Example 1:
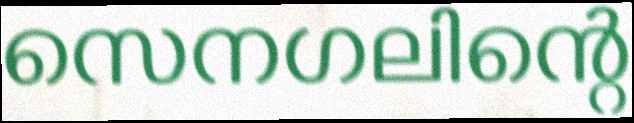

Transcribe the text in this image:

സെനഗലിന്റെ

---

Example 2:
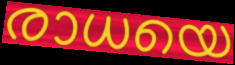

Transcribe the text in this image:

രാധയെ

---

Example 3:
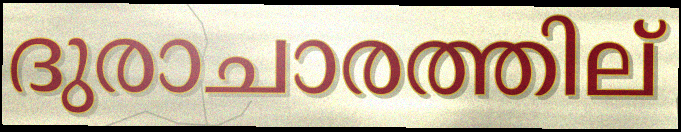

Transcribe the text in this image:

ദുരാചാരത്തില്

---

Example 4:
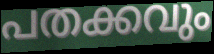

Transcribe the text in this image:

പതക്കവും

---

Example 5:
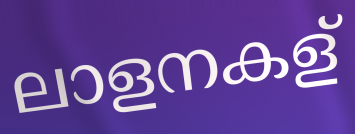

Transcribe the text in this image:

ലാളനകള്